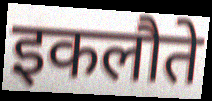
इकलौते